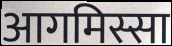
आगमिस्सा